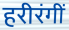
हरीरंगीं